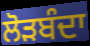
ਲੋੜਬੰਦਾ